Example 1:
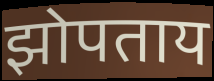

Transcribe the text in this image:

झोपताय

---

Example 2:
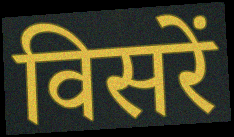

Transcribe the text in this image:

विसरें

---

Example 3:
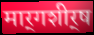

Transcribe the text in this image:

मार्गशीर्ष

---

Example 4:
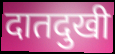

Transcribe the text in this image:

दातदुखी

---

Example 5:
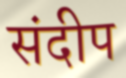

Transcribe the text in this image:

संदीप